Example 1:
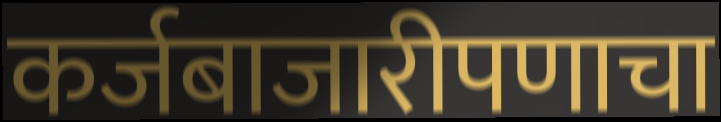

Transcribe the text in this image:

कर्जबाजारीपणाचा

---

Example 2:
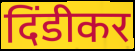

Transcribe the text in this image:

दिंडीकर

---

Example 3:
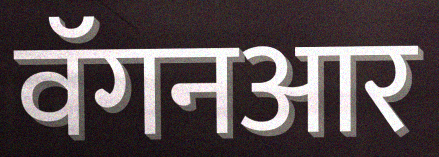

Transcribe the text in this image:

वॅगनआर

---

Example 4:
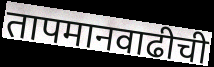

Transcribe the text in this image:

तापमानवाढीची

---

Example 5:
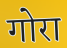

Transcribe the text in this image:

गोरा